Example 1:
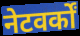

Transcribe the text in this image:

नेटवर्कों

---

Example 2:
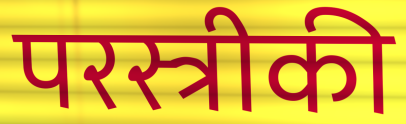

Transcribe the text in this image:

परस्त्रीकी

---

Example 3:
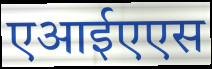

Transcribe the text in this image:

एआईएएस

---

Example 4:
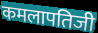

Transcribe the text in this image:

कमलापतिजी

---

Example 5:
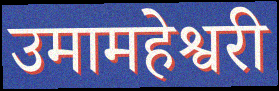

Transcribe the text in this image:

उमामहेश्वरी